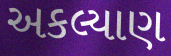
અકલ્યાણ